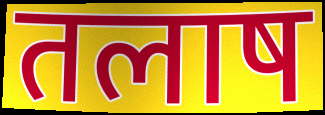
तलाष